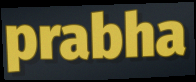
prabha